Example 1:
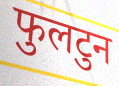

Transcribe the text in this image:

फुलटुन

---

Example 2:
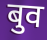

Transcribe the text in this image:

बुव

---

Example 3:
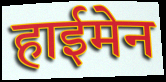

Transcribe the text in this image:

हाईमेन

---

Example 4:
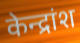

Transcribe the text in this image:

केन्द्रांश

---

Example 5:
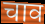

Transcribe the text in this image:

चाव